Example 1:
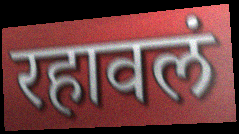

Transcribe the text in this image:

रहावलं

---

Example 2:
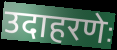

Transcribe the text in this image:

उदाहरणेः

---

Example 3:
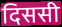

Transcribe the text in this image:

दिससी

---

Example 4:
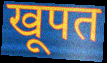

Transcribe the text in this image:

खूपत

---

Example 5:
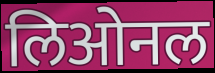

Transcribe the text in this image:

लिओनल